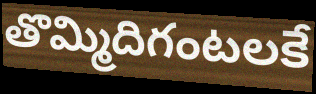
తొమ్మిదిగంటలకే